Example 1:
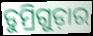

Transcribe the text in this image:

ଡୁମ୍ରିଗୁଡ଼ାର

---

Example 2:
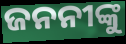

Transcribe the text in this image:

ଜନନୀଙ୍କୁ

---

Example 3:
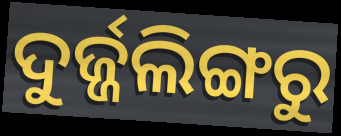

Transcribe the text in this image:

ଦୁର୍ଜ୍ଜଲିଙ୍ଗରୁ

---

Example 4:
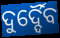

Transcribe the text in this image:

ଦୁର୍ଦ୍ଦୈବ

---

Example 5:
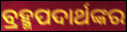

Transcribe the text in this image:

ବ୍ରହ୍ମପଦାର୍ଥଙ୍କର